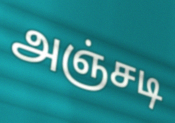
அஞ்சடி